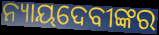
ନ୍ୟାୟଦେବୀଙ୍କର